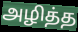
அழித்த